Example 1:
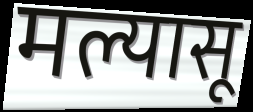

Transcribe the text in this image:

मल्यासू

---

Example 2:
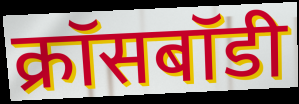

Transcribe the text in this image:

क्रॉसबॉडी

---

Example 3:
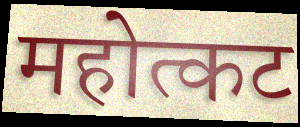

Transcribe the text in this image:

महोत्कट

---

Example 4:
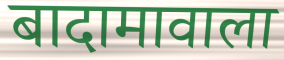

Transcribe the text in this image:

बादामावाला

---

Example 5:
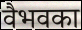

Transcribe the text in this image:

वैभवका